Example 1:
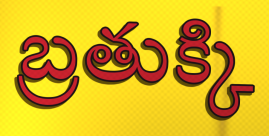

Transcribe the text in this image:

బ్రతుక్కి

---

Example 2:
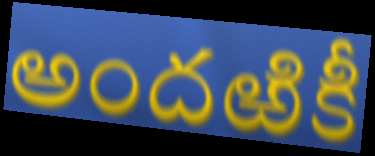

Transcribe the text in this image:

అందఱికీ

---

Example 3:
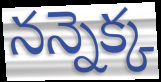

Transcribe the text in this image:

నన్నెక్క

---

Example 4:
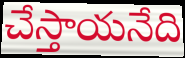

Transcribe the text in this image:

చేస్తాయనేది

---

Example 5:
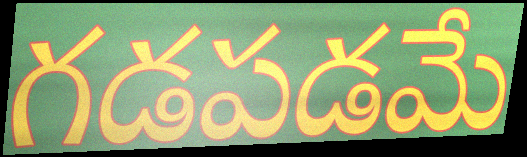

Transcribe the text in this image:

గడపడమే